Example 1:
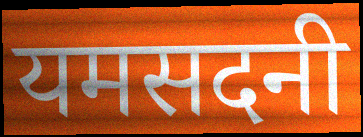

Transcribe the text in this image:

यमसदनी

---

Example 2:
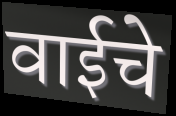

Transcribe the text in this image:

वाईचे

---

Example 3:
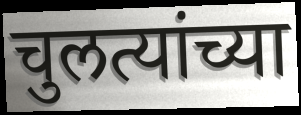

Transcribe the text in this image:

चुलत्यांच्या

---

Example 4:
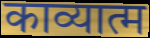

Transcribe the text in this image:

काव्यात्म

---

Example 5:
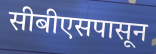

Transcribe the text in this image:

सीबीएसपासून